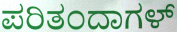
ಪರಿತಂದಾಗಳ್